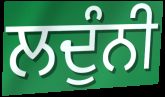
ਲਦੁੰਨੀ